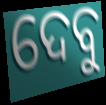
ଦେବୁ